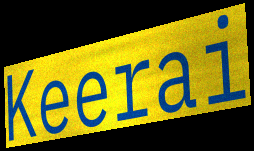
Keerai